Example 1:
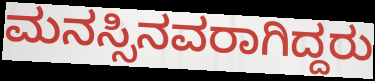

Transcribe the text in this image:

ಮನಸ್ಸಿನವರಾಗಿದ್ದರು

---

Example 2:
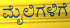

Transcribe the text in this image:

ಮೈಲಿಗಳಿಗೆ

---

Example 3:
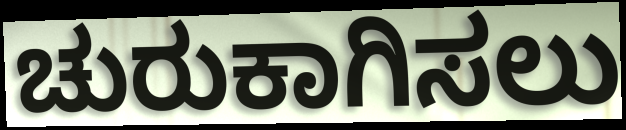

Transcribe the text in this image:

ಚುರುಕಾಗಿಸಲು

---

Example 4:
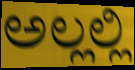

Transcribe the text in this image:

ಅಲ್ಲಲ್ಲಿ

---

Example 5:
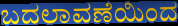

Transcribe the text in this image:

ಬದಲಾವಣೆಯಿಂದ